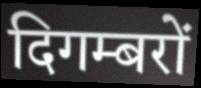
दिगम्बरों